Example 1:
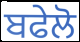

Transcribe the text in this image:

ਬਫੇਲੋ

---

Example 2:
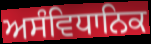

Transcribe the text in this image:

ਅਸੰਵਿਧਾਨਿਕ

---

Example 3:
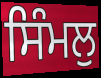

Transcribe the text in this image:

ਸਿੰਮਲੁ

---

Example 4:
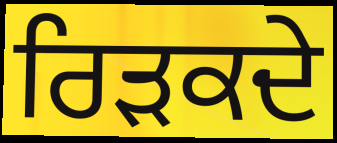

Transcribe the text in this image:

ਰਿੜਕਦੇ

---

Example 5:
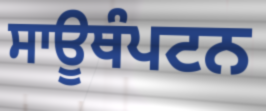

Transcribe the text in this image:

ਸਾਊਥੰਪਟਨ